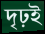
দৃঢ়ই